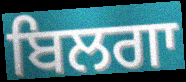
ਬਿਲਗਾ